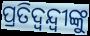
ପ୍ରତିଦ୍ବନ୍ଦ୍ବୀଙ୍କୁ